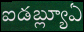
ఐడబ్ల్యూఏ